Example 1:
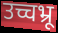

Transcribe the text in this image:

उच्चभ्रू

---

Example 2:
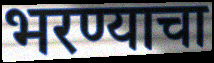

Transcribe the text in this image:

भरण्याचा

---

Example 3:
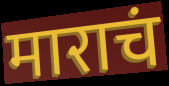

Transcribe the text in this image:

माराचं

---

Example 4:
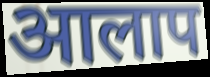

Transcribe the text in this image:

आलाप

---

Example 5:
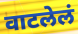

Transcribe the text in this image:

वाटलेलं